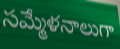
సమ్మేళనాలుగా